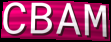
CBAM